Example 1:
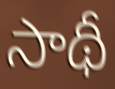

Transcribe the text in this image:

సాథీ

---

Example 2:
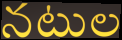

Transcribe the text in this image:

నటుల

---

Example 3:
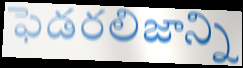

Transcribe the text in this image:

ఫెడరలిజాన్ని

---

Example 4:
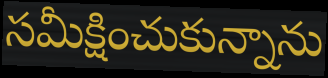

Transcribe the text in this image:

సమీక్షించుకున్నాను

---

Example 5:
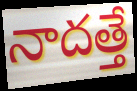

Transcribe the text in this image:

నాదత్తే